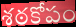
శఠకోపం